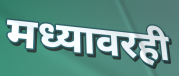
मध्यावरही